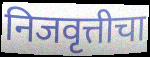
निजवृत्तीचा